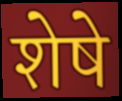
शेषे